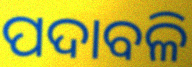
ପଦାବଳି